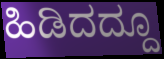
ಹಿಡಿದದ್ದೂ